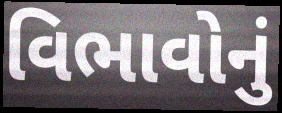
વિભાવોનું